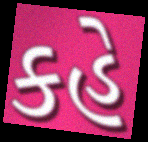
કહે